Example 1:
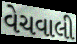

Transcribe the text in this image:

વેચવાલી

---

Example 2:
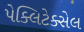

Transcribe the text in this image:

પેક્લિટેક્સેલ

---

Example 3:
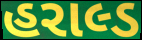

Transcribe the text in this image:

હરાલ્ડ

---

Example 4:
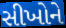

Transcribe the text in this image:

સીખોને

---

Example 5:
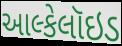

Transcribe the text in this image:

આલ્કેલૉઇડ